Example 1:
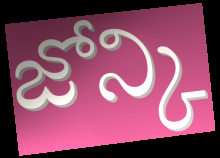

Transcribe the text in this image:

జోన్కి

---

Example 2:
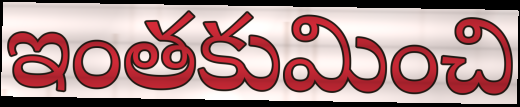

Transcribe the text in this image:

ఇంతకుమించి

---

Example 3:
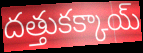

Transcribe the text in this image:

దత్తుకక్కాయ్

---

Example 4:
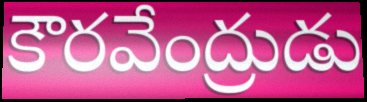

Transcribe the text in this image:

కౌరవేంద్రుడు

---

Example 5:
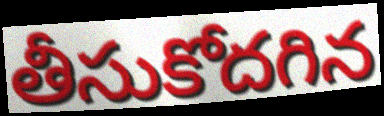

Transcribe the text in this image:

తీసుకోదగిన